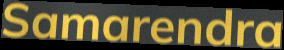
Samarendra